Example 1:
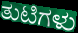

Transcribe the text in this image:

ತುಟಿಗಳು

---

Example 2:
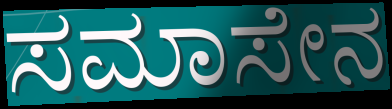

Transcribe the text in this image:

ಸಮಾಸೇನ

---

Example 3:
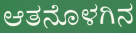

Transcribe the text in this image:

ಆತನೊಳಗಿನ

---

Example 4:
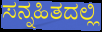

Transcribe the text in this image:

ಸನ್ನಹಿತದಲ್ಲಿ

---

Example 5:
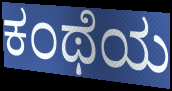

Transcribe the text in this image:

ಕಂಥೆಯ